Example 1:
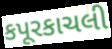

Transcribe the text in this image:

કપૂરકાચલી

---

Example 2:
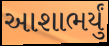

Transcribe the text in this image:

આશાભર્યું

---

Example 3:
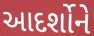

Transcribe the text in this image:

આદર્શોને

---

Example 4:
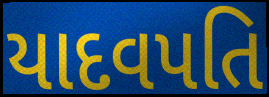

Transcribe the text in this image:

યાદવપતિ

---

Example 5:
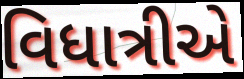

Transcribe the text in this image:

વિધાત્રીએ